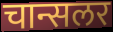
चान्सलर